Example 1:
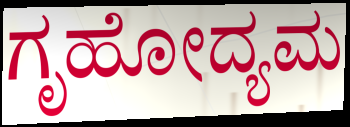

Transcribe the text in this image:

ಗೃಹೋದ್ಯಮ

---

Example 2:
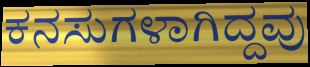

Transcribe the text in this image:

ಕನಸುಗಳಾಗಿದ್ದವು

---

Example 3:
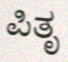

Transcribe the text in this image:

ಪಿತೃ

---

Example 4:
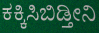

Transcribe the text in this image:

ಕಕ್ಕಿಸಿಬಿಡ್ತೀನಿ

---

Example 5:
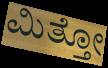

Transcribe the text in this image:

ಮಿತ್ತೋ